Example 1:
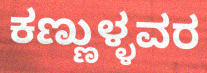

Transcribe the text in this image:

ಕಣ್ಣುಳ್ಳವರ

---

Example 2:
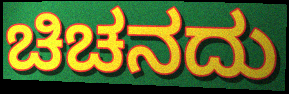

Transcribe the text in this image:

ಚಿಚನದು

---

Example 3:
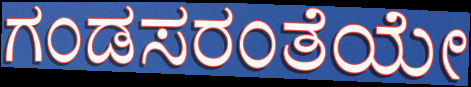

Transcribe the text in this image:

ಗಂಡಸರಂತೆಯೇ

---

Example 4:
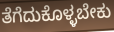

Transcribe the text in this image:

ತೆಗೆದುಕೊಳ್ಳಬೇಕು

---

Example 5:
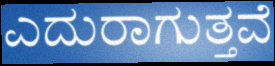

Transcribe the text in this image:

ಎದುರಾಗುತ್ತವೆ